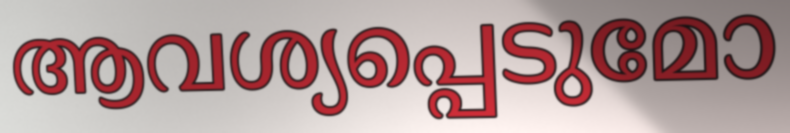
ആവശ്യപ്പെടുമോ